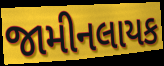
જામીનલાયક